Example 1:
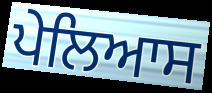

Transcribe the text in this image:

ਪੇਲਿਆਸ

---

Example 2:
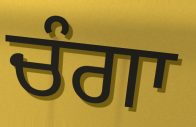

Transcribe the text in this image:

ਚੰਗਾ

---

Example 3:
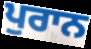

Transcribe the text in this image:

ਪੁਰਾਨ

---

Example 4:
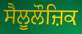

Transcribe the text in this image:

ਸੈਲੂਲੌਜ਼ਿਕ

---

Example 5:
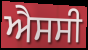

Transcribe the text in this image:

ਐਸਸੀ